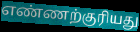
எண்ணற்குரியது